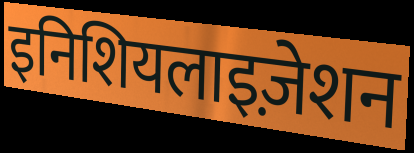
इनिशियलाइज़ेशन